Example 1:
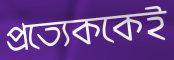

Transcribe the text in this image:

প্রত্যেককেই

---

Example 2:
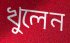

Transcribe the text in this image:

খুলেন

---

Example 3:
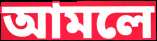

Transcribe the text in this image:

আমলে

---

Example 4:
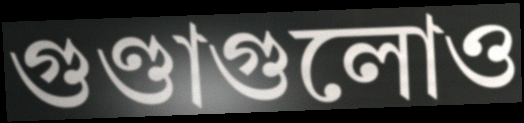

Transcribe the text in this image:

গুণ্ডাগুলোও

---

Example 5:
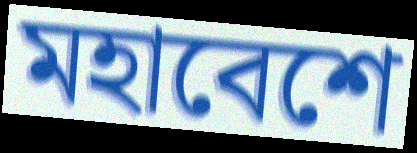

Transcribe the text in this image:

মহাবেশে